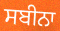
ਸਬੀਨਾ